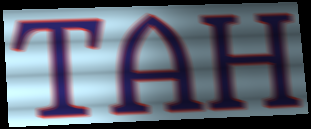
TAH